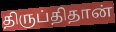
திருப்திதான்